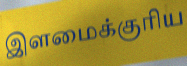
இளமைக்குரிய